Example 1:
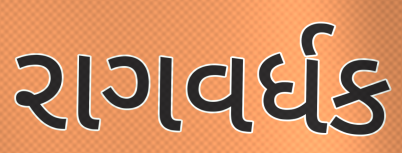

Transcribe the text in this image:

રાગવર્ધક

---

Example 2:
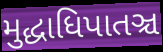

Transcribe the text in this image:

મુદ્ધાધિપાતઞ્ચ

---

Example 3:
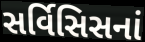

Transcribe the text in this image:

સર્વિસિસનાં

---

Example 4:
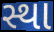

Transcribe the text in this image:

સ્થા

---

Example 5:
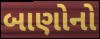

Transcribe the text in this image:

બાણોનો